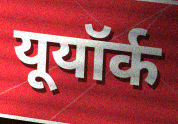
यूयॉर्क